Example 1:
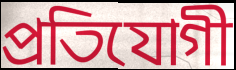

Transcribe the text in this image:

প্ৰতিযোগী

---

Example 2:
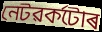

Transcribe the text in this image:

নেটৱৰ্কটোৰ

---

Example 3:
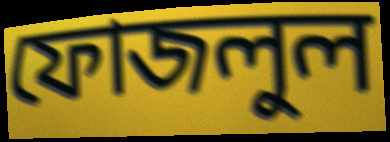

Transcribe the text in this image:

ফোজলুল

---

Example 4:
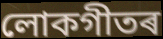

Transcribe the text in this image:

লোকগীতৰ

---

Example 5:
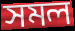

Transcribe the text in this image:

সমল